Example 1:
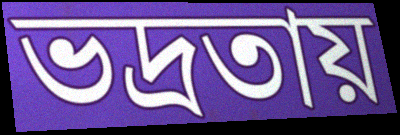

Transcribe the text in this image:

ভদ্রতায়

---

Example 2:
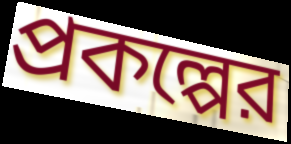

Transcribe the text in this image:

প্রকল্পের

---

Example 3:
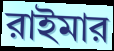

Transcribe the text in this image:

রাইমার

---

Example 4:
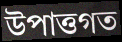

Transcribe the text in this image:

উপাত্তগত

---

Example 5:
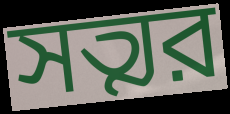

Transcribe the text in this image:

সত্মর